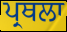
ਪ੍ਰਥਲਾ